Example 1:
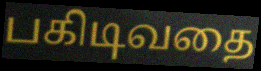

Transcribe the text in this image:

பகிடிவதை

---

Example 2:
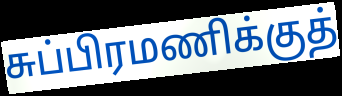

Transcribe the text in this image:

சுப்பிரமணிக்குத்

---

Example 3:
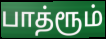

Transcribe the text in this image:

பாத்ரூம்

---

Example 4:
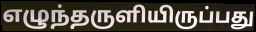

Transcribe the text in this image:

எழுந்தருளியிருப்பது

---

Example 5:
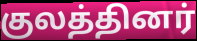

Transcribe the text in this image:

குலத்தினர்